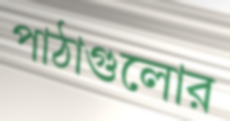
পাঠাগুলোর